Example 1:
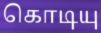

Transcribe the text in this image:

கொடியு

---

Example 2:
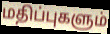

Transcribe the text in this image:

மதிப்புகளும்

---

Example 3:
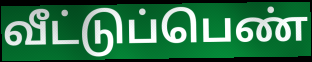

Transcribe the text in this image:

வீட்டுப்பெண்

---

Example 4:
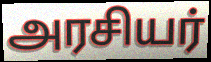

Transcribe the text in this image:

அரசியர்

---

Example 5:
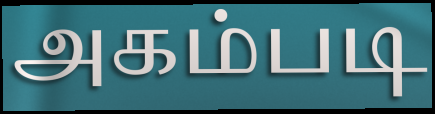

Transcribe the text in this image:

அகம்படி